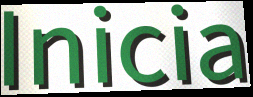
Inicia